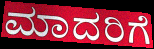
ಮಾದರಿಗೆ